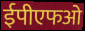
ईपीएफओ